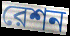
রেশন